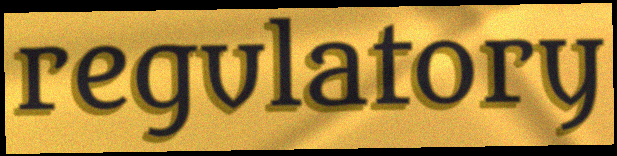
regulatory